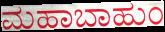
ಮಹಾಬಾಹುಂ